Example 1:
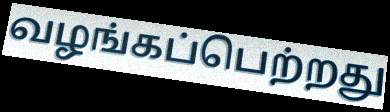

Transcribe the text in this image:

வழங்கப்பெற்றது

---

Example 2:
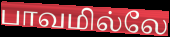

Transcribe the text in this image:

பாவமில்லே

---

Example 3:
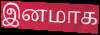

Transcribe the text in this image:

இனமாக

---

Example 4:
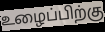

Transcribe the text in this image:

உழைப்பிற்கு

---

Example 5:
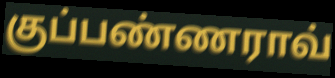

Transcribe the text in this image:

குப்பண்ணராவ்